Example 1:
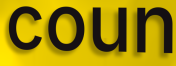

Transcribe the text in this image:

coun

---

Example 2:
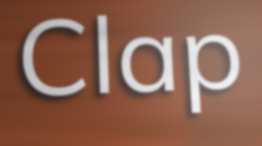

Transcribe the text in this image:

Clap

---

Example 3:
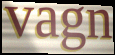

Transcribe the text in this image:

vagn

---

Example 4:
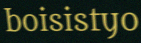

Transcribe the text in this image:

boisistyo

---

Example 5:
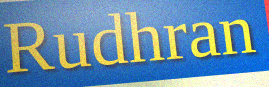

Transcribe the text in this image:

Rudhran